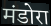
मंडोरा